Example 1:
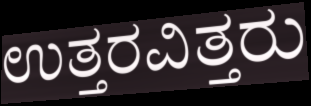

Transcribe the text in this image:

ಉತ್ತರವಿತ್ತರು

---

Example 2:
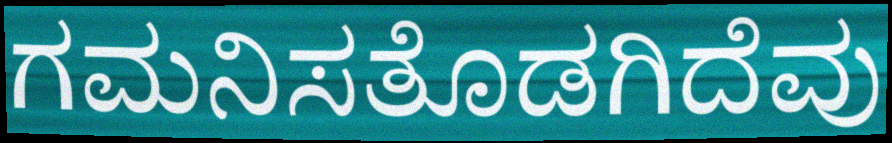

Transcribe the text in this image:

ಗಮನಿಸತೊಡಗಿದೆವು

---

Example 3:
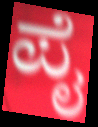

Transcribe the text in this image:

ಪೈ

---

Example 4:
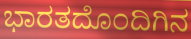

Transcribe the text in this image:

ಭಾರತದೊಂದಿಗಿನ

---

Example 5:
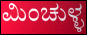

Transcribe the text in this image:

ಮಿಂಚುಳ್ಳ